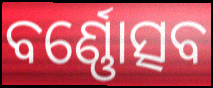
ବର୍ଣ୍ଣୋତ୍ସବ